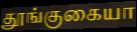
தூங்குகையா